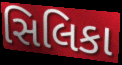
સિલિકા